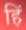
हिं